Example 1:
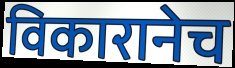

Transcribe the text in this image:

विकारानेच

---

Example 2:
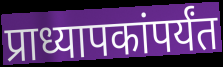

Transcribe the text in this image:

प्राध्यापकांपर्यंत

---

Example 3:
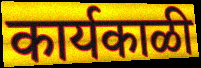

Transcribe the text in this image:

कार्यकाळी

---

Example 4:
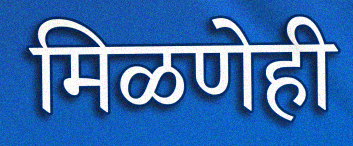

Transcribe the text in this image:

मिळणेही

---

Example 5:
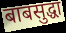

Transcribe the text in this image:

बाबसुद्धा